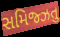
સમિજ્ઝતુ